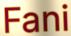
Fani